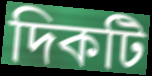
দিকটি